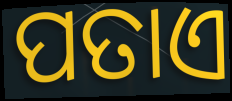
ପତାଏ